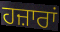
ਹਜ਼ਾਰਾਂ